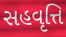
સહવૃત્તિ